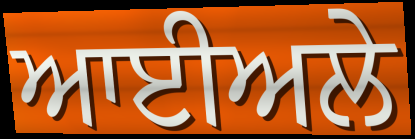
ਆਈਅਲੇ